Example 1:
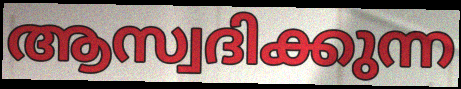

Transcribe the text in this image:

ആസ്വദിക്കുന്ന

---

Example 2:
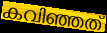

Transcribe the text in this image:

കവിഞ്ഞത്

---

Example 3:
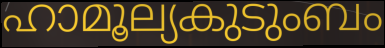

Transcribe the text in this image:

ഹാമൂല്യകുടുംബം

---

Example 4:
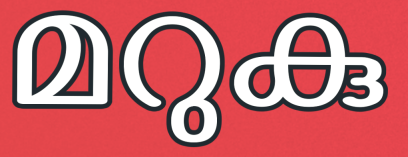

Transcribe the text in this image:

മറുകു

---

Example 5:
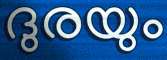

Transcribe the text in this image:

ദുരയും